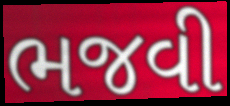
ભજવી